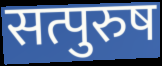
सत्पुरुष